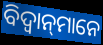
ବିଦ୍ୱାନ୍‌ମାନେ